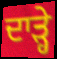
ਦਾੜ੍ਹੇ